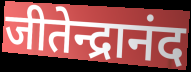
जीतेन्द्रानंद